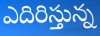
ఎదిరిస్తున్న